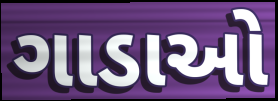
ગાડાઓ